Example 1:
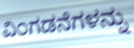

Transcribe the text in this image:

ವಿಂಗಡನೆಗಳನ್ನು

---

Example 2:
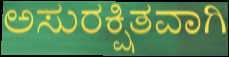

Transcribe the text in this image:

ಅಸುರಕ್ಷಿತವಾಗಿ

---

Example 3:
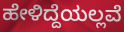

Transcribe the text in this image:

ಹೇಳಿದ್ದೆಯಲ್ಲವೆ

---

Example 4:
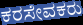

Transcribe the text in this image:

ಕರಸೇವಕರು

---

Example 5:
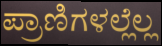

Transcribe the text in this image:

ಪ್ರಾಣಿಗಳಲ್ಲೆಲ್ಲ